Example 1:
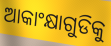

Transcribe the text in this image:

ଆକାଂକ୍ଷାଗୁଡିକୁ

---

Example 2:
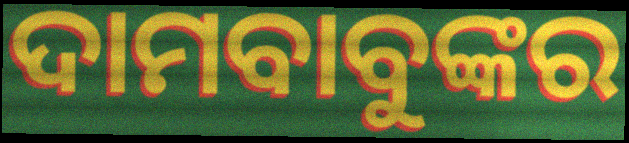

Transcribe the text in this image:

ଦାମବାବୁଙ୍କର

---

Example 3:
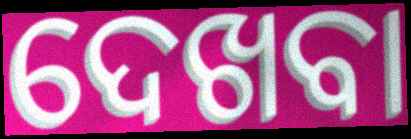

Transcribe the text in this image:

ଦେଖବା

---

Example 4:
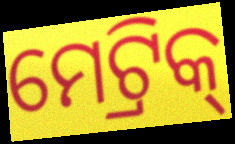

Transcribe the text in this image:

ମେଟ୍ରିକ୍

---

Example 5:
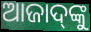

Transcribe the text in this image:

ଆଜାଦ୍‌ଙ୍କୁ